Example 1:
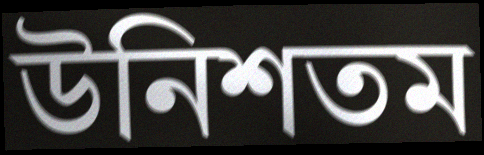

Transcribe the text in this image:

উনিশতম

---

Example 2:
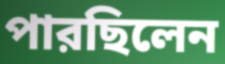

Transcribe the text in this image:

পারছিলেন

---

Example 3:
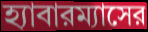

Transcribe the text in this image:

হ্যাবারম্যাসের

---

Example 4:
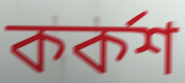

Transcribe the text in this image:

কর্কশ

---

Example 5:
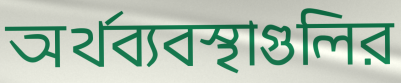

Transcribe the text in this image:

অর্থব্যবস্থাগুলির